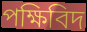
পক্ষিবিদ